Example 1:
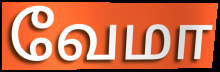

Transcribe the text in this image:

வேமா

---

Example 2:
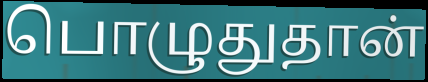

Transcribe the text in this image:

பொழுதுதான்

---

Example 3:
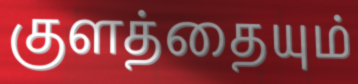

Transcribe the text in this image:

குளத்தையும்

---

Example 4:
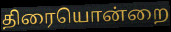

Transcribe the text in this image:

திரையொன்றை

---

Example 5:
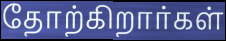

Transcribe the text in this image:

தோற்கிறார்கள்